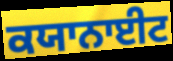
ਕਯਾਨਾਈਟ